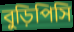
বুড়িপিসি